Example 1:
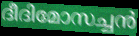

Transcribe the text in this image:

ദീദിമോസച്ചൻ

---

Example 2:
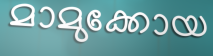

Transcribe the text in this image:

മാമുക്കോയ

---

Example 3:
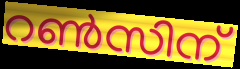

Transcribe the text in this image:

റൺസിന്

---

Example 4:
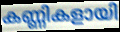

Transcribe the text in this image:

കണ്ണികളായി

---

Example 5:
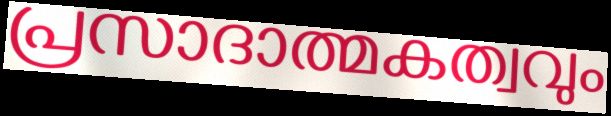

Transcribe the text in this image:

പ്രസാദാത്മകത്വവും